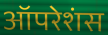
ऑपरेशंस